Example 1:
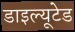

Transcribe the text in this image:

डाइल्यूटेड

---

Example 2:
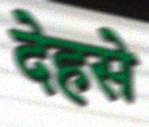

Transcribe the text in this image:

देहसे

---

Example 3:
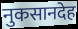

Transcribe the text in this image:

नुकसानदेह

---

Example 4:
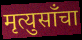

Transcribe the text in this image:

मृत्युसाँचा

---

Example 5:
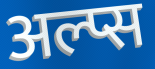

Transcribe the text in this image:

अल्प्स